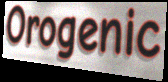
Orogenic